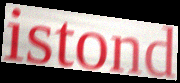
istond